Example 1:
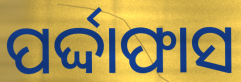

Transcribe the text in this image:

ପର୍ଦ୍ଦାଫାସ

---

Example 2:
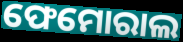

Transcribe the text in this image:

ଫେମୋରାଲ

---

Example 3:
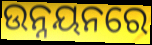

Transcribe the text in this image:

ଉନ୍ନୟନରେ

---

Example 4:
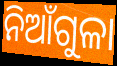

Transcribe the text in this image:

ନିଆଁଗୁଳା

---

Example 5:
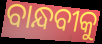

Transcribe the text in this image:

ବାନ୍ଧବୀକୁ